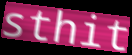
sthit